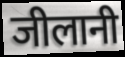
जीलानी